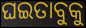
ଘଇତାବୁକୁ